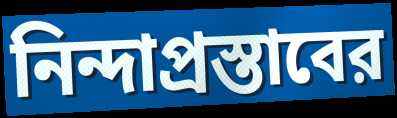
নিন্দাপ্রস্তাবের